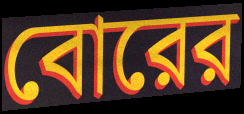
বোরের